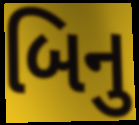
બિનુ